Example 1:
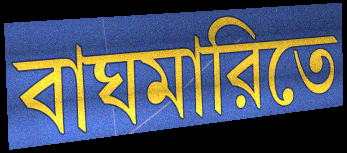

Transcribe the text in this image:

বাঘমারিতে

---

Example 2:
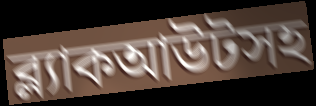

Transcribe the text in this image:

ব্ল্যাকআউটসহ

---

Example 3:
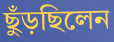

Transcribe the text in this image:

ছুঁড়ছিলেন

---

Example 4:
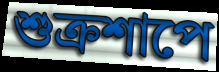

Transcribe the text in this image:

শুক্রশাপে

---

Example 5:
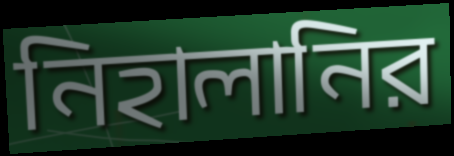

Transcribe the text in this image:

নিহালানির